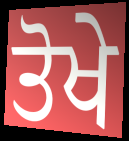
ਤੋਖੇ